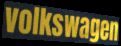
volkswagen